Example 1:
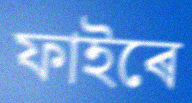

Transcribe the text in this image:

ফাইৰে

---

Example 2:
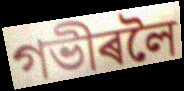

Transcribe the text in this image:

গভীৰলৈ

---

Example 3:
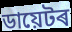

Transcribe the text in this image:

ডায়েটৰ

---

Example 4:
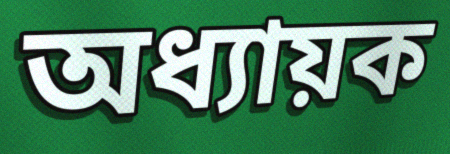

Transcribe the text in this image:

অধ্যায়ক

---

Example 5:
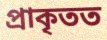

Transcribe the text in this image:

প্ৰাকৃতত